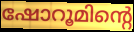
ഷോറൂമിന്റെ